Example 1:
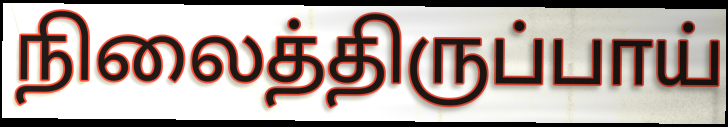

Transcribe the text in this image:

நிலைத்திருப்பாய்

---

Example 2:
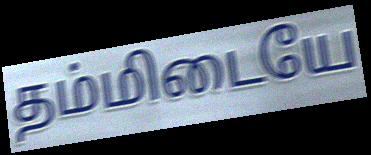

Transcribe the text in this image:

தம்மிடையே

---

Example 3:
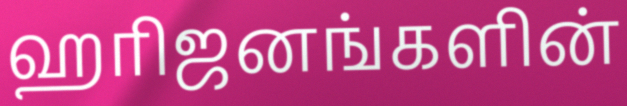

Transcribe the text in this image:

ஹரிஜனங்களின்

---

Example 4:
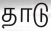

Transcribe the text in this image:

தாடு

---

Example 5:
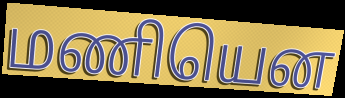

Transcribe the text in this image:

மணியென